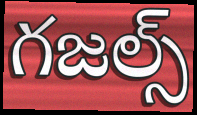
గజల్స్